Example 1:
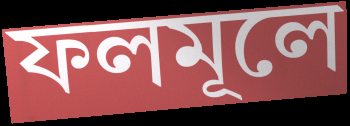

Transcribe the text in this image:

ফলমূলে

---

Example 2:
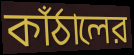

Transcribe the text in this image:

কাঁঠালের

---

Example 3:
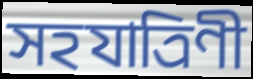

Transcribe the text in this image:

সহযাত্রিণী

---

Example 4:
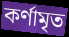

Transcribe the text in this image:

কর্ণামৃত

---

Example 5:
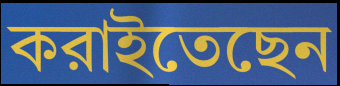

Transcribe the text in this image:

করাইতেছেন